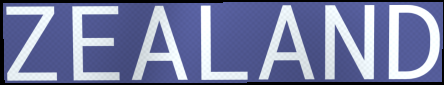
ZEALAND